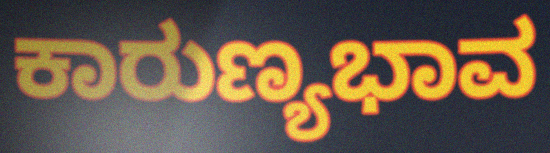
ಕಾರುಣ್ಯಭಾವ